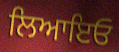
ਲਿਆਇਓ